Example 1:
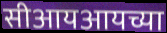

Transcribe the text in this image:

सीआयआयच्या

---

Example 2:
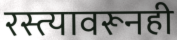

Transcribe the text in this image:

रस्त्यावरूनही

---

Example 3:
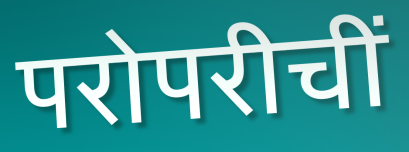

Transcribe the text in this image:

परोपरीचीं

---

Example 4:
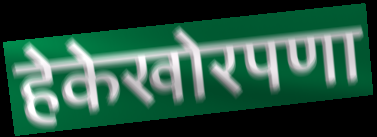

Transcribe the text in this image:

हेकेखोरपणा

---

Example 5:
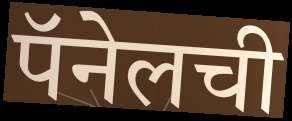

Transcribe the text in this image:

पॅनेलची